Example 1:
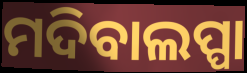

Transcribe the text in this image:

ମଦିବାଲପ୍ପା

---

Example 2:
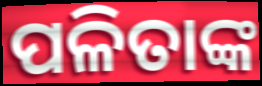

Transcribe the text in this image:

ପଳିତାଙ୍କ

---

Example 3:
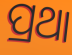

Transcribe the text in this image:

ପ୍ରଥା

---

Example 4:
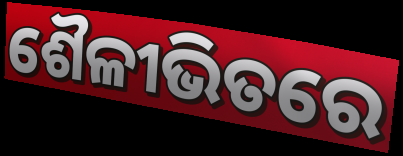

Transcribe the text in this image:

ଶୈଳୀଭିତରେ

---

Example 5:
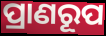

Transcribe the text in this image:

ପ୍ରାଣରୂପ